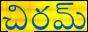
చిరమ్